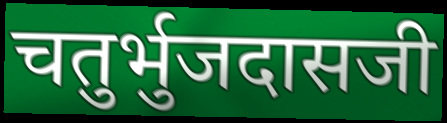
चतुर्भुजदासजी